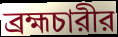
ব্রহ্মচারীর